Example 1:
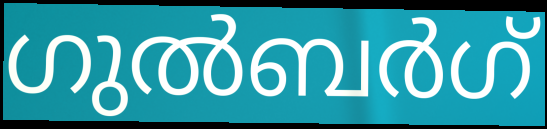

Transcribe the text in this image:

ഗുൽബർഗ്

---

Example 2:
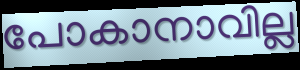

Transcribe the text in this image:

പോകാനാവില്ല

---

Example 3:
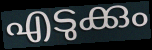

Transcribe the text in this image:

എടുക്കും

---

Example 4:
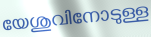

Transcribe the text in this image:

യേശുവിനോടുള്ള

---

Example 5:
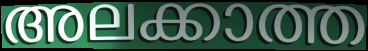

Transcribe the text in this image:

അലക്കാത്ത